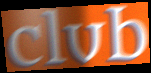
club